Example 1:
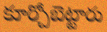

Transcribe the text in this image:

కూర్చోబెట్టారు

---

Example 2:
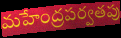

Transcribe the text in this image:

మహేంద్రపర్వతపు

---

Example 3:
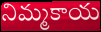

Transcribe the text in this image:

నిమ్మకాయ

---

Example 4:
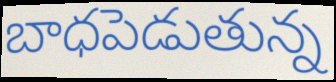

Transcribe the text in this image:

బాధపెడుతున్న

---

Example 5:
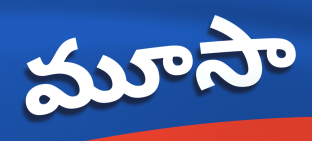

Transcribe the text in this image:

మూసా